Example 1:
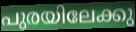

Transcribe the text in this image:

പുരയിലേക്കു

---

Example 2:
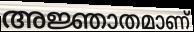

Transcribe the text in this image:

അജ്ഞാതമാണ്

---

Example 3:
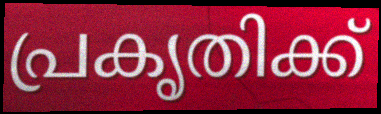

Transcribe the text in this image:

പ്രകൃതിക്ക്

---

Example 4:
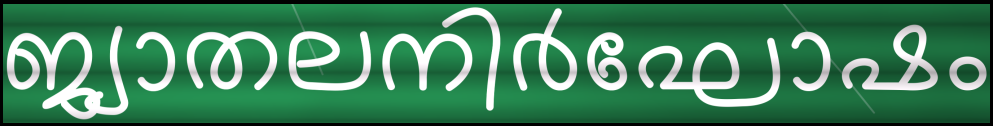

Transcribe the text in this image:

ജ്യാതലനിർഘോഷം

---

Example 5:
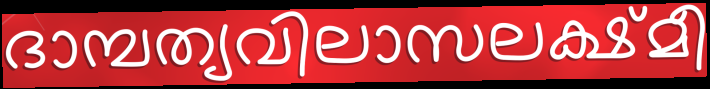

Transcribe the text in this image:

ദാമ്പത്യവിലാസലക്ഷ്മീ